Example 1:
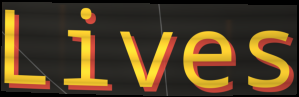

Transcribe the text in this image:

Lives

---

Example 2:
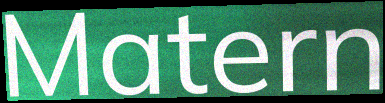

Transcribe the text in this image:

Matern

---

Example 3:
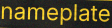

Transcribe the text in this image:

nameplate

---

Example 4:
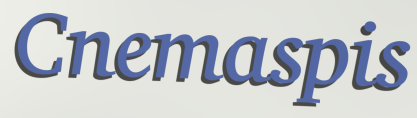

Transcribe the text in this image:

Cnemaspis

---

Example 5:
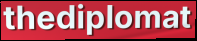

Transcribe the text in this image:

thediplomat